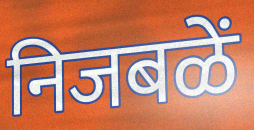
निजबळें